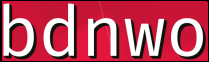
bdnwo